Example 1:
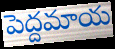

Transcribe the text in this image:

పెద్దమాయ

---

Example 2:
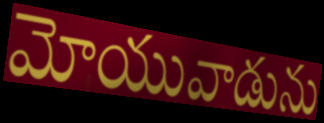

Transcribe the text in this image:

మోయువాడును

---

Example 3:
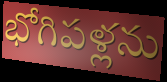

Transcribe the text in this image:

భోగిపళ్లను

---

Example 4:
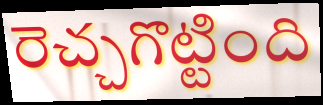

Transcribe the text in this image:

రెచ్చగొట్టింది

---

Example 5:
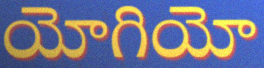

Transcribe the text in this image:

యోగియో